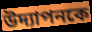
উদ্যাপনকে